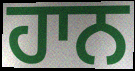
ਹਾਨ